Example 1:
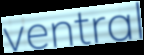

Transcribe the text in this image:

ventral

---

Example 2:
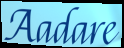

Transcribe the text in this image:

Aadare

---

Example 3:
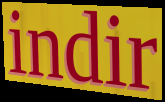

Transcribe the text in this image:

indir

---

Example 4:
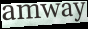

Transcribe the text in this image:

amway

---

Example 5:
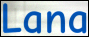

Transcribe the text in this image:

Lana